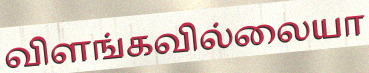
விளங்கவில்லையா